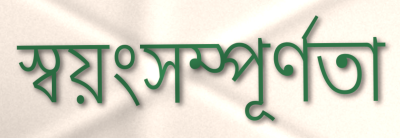
স্বয়ংসম্পূর্ণতা